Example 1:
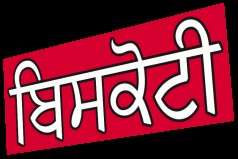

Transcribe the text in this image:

ਬਿਸਕੋਟੀ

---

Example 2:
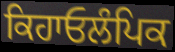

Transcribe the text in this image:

ਕਿਹਾਓਲੰਪਿਕ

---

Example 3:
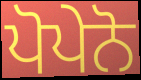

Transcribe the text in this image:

ਪੋਪੇਨੋ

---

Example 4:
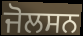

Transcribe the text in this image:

ਜੋਲਸਨ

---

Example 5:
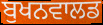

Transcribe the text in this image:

ਬੁਖਨਵਾਲਡ